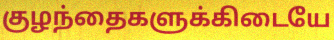
குழந்தைகளுக்கிடையே